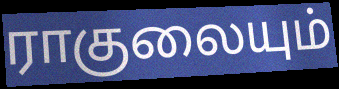
ராகுலையும்